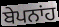
ਬੇਪਨਾਂਹ